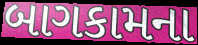
બાગકામના